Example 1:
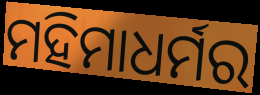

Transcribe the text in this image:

ମହିମାଧର୍ମର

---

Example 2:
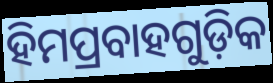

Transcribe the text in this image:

ହିମପ୍ରବାହଗୁଡ଼ିକ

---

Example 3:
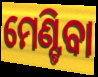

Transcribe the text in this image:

ମେଣ୍ଟିବା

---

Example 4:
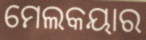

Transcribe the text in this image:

ମେଲକୟାର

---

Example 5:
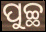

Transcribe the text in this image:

ପୁଚ୍ଛ